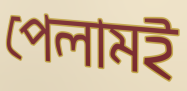
পেলামই